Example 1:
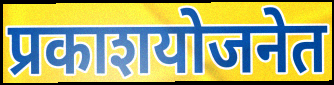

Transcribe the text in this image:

प्रकाशयोजनेत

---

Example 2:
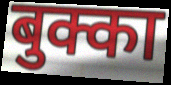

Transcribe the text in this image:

बुक्का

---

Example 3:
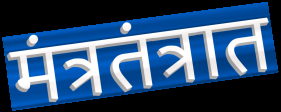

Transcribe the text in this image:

मंत्रतंत्रात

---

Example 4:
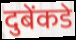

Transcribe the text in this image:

दुबेंकडे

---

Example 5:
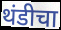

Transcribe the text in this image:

थंडीचा